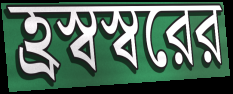
হ্রস্বস্বরের